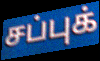
சப்புக்